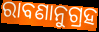
ରାବଣାନୁଗ୍ରହ